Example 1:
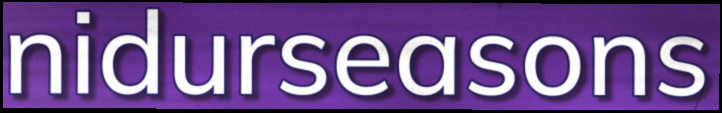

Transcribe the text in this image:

nidurseasons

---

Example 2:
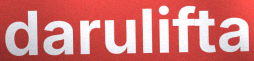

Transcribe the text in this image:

darulifta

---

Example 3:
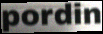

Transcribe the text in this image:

pordin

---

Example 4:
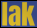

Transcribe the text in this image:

lak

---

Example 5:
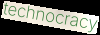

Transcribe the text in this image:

technocracy